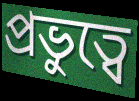
প্রভুত্বে